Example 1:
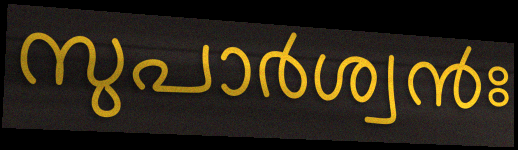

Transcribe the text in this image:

സുപാർശ്വൻഃ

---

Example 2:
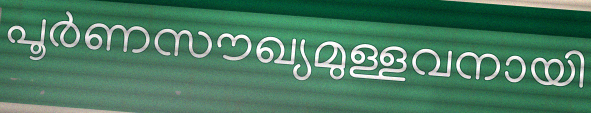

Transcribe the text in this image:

പൂർണസൗഖ്യമുള്ളവനായി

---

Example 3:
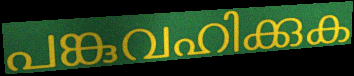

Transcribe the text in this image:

പങ്കുവഹിക്കുക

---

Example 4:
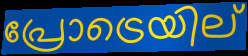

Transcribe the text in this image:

പ്രോട്രെയില്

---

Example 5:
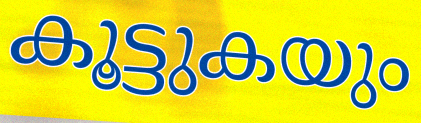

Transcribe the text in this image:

കൂട്ടുകയും